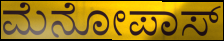
ಮೆನೋಪಾಸ್